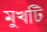
মুখটি